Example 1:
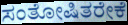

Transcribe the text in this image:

ಸಂತೋಷಿತರೇಕೆ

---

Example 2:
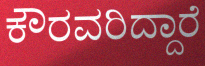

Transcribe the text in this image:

ಕೌರವರಿದ್ದಾರೆ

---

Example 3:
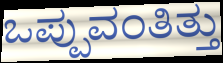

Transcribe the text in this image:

ಒಪ್ಪುವಂತಿತ್ತು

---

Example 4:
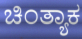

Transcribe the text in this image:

ಚಿಂತ್ಯಾಕ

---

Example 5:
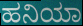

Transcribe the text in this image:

ಹನಿಯಾ